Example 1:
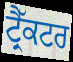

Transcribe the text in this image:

ਟ੍ਰੈੱਕਟਰ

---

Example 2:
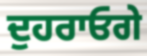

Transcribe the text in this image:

ਦੁਹਰਾਓਗੇ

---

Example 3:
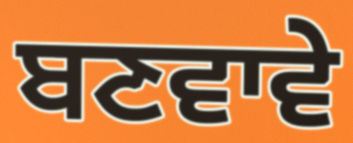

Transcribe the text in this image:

ਬਣਵਾਵੇ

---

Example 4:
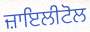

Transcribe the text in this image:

ਜ਼ਾਇਲੀਟੋਲ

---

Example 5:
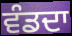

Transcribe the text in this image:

ਵੰਡਦਾ